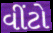
વીંટો